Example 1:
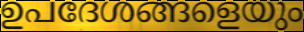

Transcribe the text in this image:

ഉപദേശങ്ങളെയും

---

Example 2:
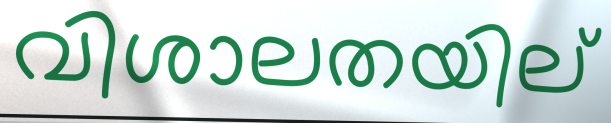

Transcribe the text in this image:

വിശാലതയില്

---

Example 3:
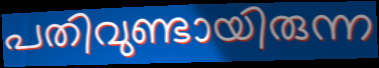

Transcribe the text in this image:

പതിവുണ്ടായിരുന്ന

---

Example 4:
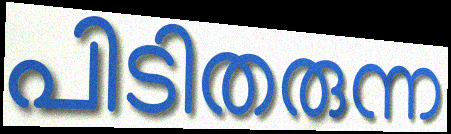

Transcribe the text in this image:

പിടിതരുന്ന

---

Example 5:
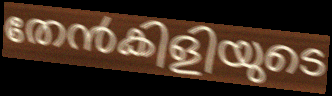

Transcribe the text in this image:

തേൻകിളിയുടെ